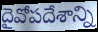
దైవోపదేశాన్ని